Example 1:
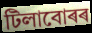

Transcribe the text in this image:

টিলাবোৰৰ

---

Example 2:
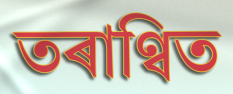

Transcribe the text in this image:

তৰাণ্বিত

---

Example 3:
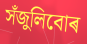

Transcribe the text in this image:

সঁজুলিবোৰ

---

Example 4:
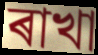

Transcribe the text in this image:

ৰাখা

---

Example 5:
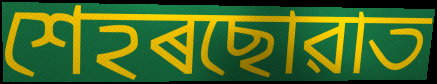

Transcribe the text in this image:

শেহৰছোৱাত